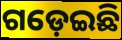
ଗଡ଼େଇଛି